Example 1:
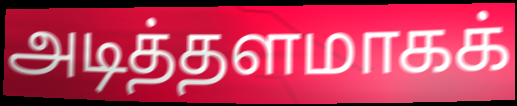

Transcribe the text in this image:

அடித்தளமாகக்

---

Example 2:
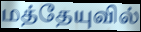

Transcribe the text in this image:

மத்தேயுவில்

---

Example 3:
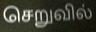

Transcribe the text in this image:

செறுவில்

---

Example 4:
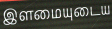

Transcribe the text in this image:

இளமையுடைய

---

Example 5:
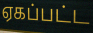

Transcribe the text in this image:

ஏகப்பட்ட